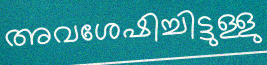
അവശേഷിച്ചിട്ടുള്ളു